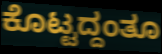
ಕೊಟ್ಟದ್ದಂತೂ